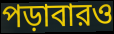
পড়াবারও